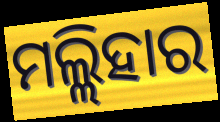
ମଲ୍ଲିହାର